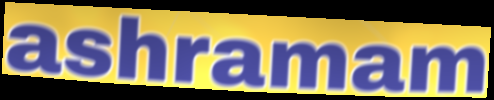
ashramam